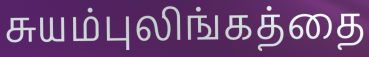
சுயம்புலிங்கத்தை